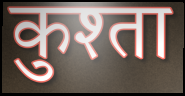
कुश्ता